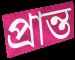
প্ৰান্ত